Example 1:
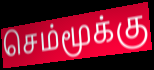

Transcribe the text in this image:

செம்மூக்கு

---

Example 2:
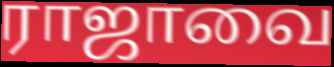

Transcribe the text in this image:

ராஜாவை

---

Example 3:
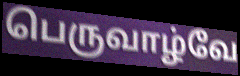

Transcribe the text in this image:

பெருவாழ்வே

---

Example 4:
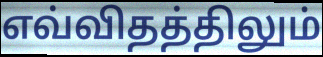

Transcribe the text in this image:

எவ்விதத்திலும்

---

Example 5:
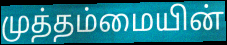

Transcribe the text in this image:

முத்தம்மையின்